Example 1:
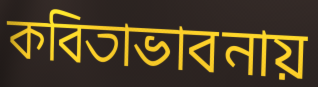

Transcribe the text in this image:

কবিতাভাবনায়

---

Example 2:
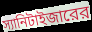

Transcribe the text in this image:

স্যানিটাইজারের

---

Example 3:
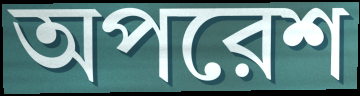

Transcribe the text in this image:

অপরেশ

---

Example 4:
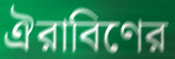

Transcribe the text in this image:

ঐরাবিণের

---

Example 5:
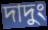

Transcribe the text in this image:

দাদুং